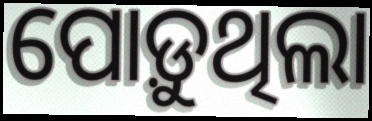
ପୋଡ଼ୁଥିଲା